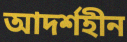
আদৰ্শহীন